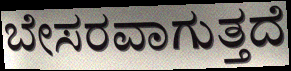
ಬೇಸರವಾಗುತ್ತದೆ